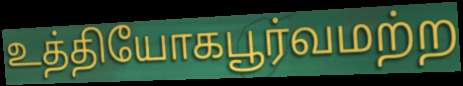
உத்தியோகபூர்வமற்ற